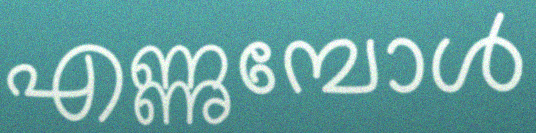
എണ്ണുമ്പോൾ